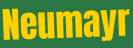
Neumayr